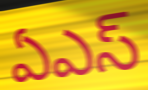
ఏఎస్